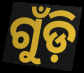
ଗୁଁଡ଼ି